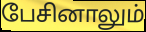
பேசினாலும்